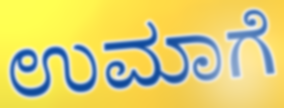
ಉಮಾಗೆ